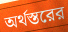
অর্থস্তরের